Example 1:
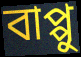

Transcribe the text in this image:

বাপ্পু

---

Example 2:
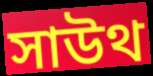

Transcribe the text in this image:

সাউথ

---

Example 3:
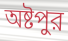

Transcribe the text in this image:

অষ্টপুর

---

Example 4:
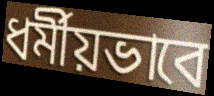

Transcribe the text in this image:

ধর্মীয়ভাবে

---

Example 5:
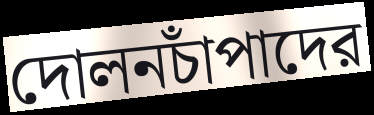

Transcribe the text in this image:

দোলনচাঁপাদের